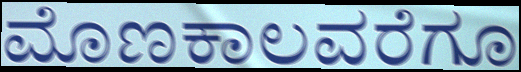
ಮೊಣಕಾಲವರೆಗೂ